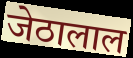
जेठालाल